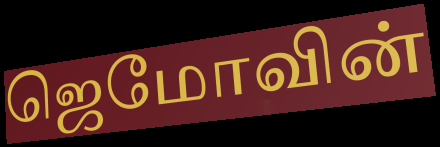
ஜெமோவின்